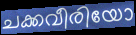
ചക്കവീരിയോ